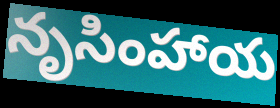
నృసింహాయ